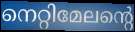
നെറ്റിമേലന്റെ